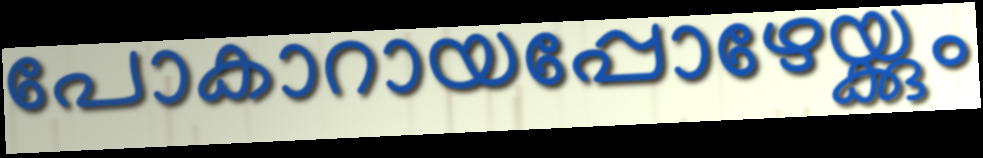
പോകാറായപ്പോഴേയ്ക്കും